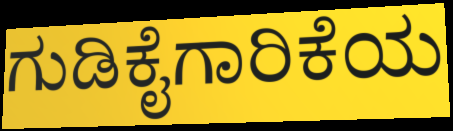
ಗುಡಿಕೈಗಾರಿಕೆಯ